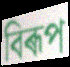
বিৰূপ